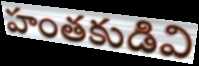
హంతకుడివి